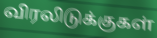
விரலிடுக்குகள்